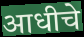
आधीचे